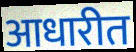
आधारीत